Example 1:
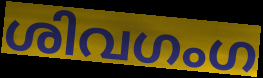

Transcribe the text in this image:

ശിവഗംഗ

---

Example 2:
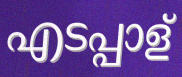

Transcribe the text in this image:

എടപ്പാള്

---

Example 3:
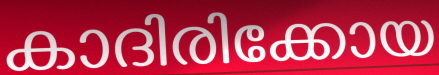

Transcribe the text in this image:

കാദിരിക്കോയ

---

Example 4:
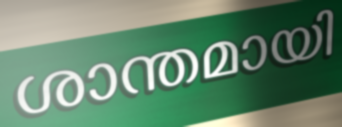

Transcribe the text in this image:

ശാന്തമായി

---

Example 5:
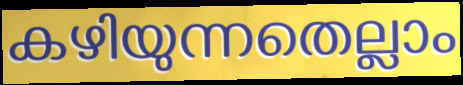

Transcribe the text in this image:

കഴിയുന്നതെല്ലാം